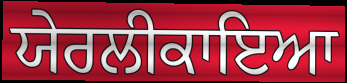
ਯੇਰਲੀਕਾਇਆ